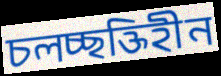
চলচ্ছক্তিহীন